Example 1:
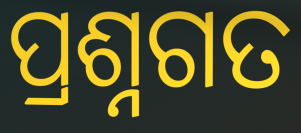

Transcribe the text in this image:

ପ୍ରଶ୍ନଗତ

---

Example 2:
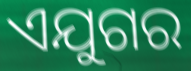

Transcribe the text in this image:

ଏଯୁଗର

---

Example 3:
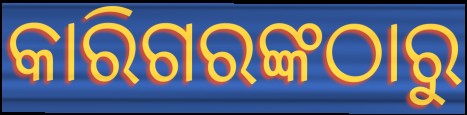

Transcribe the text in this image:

କାରିଗରଙ୍କଠାରୁ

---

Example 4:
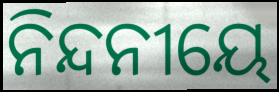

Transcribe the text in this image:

ନିନ୍ଦନୀୟେ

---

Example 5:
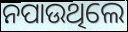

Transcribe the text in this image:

ନପାଉଥିଲେ